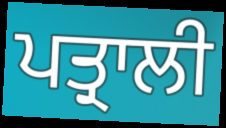
ਪਤ੍ਰਾਲੀ